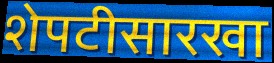
शेपटीसारखा